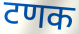
टणक